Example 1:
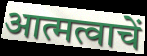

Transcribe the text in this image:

आत्मत्वाचें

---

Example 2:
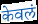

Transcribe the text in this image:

केवलं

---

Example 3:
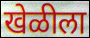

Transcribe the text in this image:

खेळीला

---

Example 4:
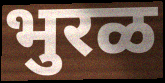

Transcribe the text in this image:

भुरळ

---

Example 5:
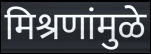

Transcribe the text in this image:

मिश्रणांमुळे